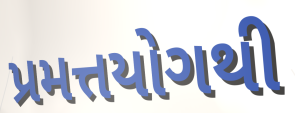
પ્રમત્તયોગથી